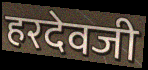
हरदेवजी